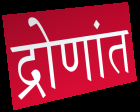
द्रोणांत